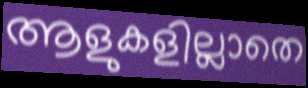
ആളുകളില്ലാതെ